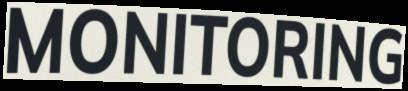
MONITORING